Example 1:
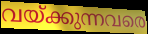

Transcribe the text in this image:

വയ്ക്കുന്നവരെ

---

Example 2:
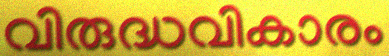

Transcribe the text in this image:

വിരുദ്ധവികാരം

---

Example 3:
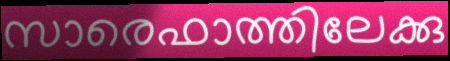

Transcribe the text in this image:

സാരെഫാത്തിലേക്കു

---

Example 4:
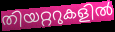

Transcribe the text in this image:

തിയറ്ററുകളിൽ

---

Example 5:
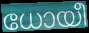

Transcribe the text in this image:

ധോയീ